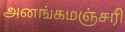
அனங்கமஞ்சரி